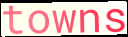
towns